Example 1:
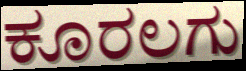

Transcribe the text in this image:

ಕೂರಲಗು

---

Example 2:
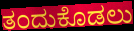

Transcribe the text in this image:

ತಂದುಕೊಡಲು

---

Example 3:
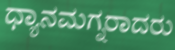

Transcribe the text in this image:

ಧ್ಯಾನಮಗ್ನರಾದರು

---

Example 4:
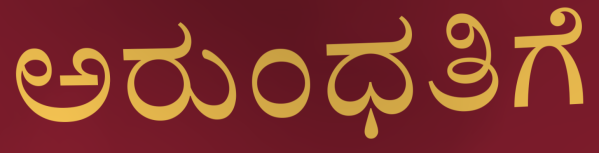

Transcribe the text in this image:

ಅರುಂಧತಿಗೆ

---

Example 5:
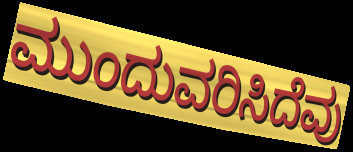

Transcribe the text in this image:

ಮುಂದುವರಿಸಿದೆವು